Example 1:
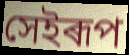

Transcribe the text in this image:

সেইৰূপ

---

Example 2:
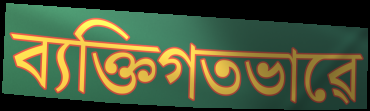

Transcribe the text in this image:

ব্যক্তিগতভাৱে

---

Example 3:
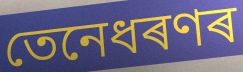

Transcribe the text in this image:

তেনেধৰণৰ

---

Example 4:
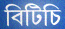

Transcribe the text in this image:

বিটিচি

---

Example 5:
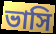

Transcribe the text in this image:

ভাসি